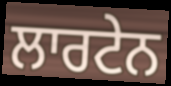
ਲਾਰਟੇਨ